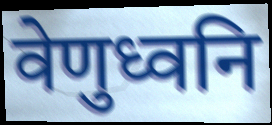
वेणुध्वनि